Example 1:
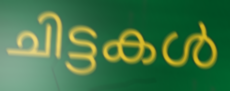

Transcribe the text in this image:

ചിട്ടകൾ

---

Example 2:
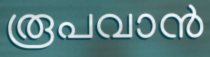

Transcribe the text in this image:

രൂപവാൻ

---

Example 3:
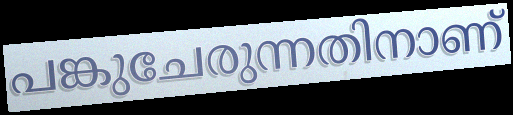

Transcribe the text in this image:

പങ്കുചേരുന്നതിനാണ്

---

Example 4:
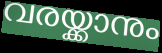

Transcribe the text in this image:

വരയ്ക്കാനും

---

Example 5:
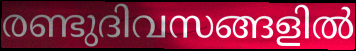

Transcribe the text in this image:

രണ്ടുദിവസങ്ങളിൽ